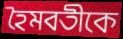
হৈমবতীকে